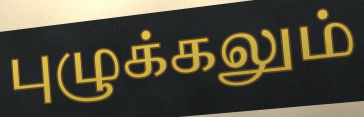
புழுக்கலும்